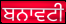
ਬਨਾਵਟੀ